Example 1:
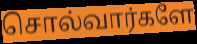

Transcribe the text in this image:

சொல்வார்களே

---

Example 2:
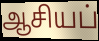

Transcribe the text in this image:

ஆசியப்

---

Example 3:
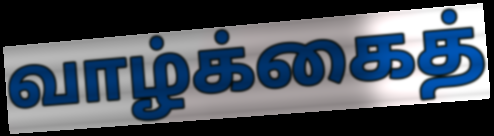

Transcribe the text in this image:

வாழ்க்கைத்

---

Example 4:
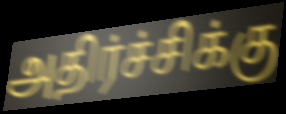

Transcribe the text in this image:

அதிர்ச்சிக்கு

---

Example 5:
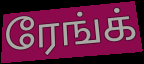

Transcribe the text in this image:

ரேங்க்